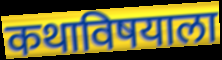
कथाविषयाला